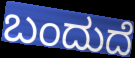
ಬಂದುದೆ